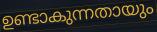
ഉണ്ടാകുന്നതായും